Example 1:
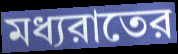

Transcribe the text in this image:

মধ্যরাতের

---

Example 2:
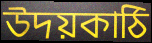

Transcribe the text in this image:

উদয়কাঠি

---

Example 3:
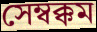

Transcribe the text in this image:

সেম্বক্কম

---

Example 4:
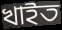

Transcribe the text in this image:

খাইত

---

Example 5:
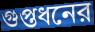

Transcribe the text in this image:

গুপ্তধনের